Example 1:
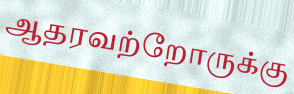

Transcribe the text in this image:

ஆதரவற்றோருக்கு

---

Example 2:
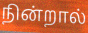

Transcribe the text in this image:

நின்றால்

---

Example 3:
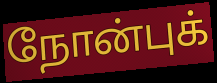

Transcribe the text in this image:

நோன்புக்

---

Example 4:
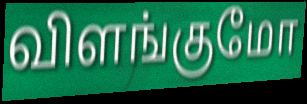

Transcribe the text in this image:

விளங்குமோ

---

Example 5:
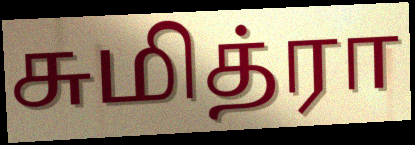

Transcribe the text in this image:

சுமித்ரா